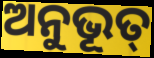
ଅନୁଭୂତ୍